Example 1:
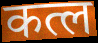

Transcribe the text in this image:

कत्ल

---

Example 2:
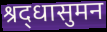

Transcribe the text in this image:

श्रद्धासुमन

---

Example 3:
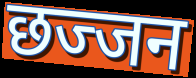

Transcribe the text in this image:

छज्जन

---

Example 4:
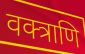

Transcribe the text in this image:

वक्त्राणि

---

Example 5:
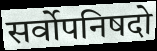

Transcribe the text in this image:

सर्वोपनिषदो